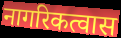
नागरिकत्वास